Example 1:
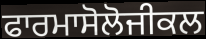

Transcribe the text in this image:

ਫਾਰਮਾਸੋਲੋਜੀਕਲ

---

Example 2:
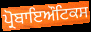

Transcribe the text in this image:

ਪ੍ਰੋਬਾਇਔਟਿਕਸ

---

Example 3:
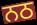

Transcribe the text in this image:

ਨਠ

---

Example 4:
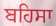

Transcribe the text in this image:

ਬਹਿਸਾ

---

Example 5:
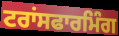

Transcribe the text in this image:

ਟਰਾਂਸਫਾਰਮਿੰਗ